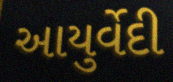
આયુર્વેદી